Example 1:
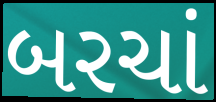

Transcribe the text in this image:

બરચાં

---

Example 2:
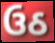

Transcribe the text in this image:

ઉઠ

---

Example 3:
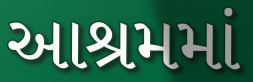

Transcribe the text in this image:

આશ્રમમાં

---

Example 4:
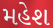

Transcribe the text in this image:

મહેશ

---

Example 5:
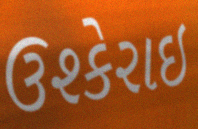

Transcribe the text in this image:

ઉશ્કેરાઇ